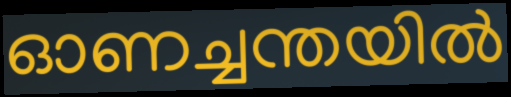
ഓണച്ചന്തയിൽ